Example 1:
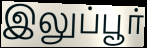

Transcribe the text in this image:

இலுப்பூர்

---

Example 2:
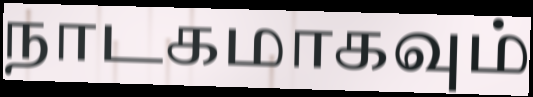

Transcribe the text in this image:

நாடகமாகவும்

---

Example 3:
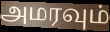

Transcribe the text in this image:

அமரவும்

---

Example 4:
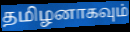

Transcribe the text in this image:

தமிழனாகவும்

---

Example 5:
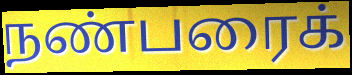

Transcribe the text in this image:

நண்பரைக்